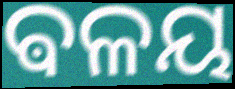
ଵଳୟ